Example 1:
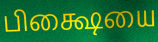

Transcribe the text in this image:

பிக்ஷையை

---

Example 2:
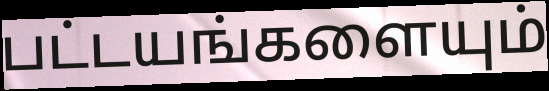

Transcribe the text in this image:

பட்டயங்களையும்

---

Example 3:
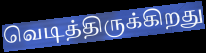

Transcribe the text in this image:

வெடித்திருக்கிறது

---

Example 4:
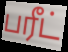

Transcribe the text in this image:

பரீட்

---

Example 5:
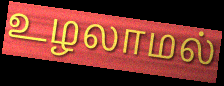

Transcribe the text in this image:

உழலாமல்